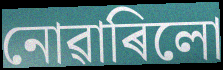
নোৱাৰিলো